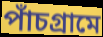
পাঁচগ্রামে